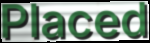
Placed